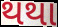
થથા